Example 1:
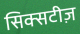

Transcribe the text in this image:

सिक्सटीज़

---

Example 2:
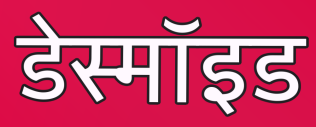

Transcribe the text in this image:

डेस्मॉइड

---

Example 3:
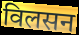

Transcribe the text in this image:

विलसन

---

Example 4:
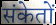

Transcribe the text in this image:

संकेतों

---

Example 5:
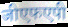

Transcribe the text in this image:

जीएफएपी